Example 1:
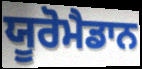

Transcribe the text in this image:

ਯੂਰੋਮੈਡਾਨ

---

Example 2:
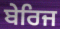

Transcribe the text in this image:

ਬੇਰਿਜ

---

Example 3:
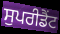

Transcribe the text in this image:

ਸੁਪਰੀਡੈਂਟ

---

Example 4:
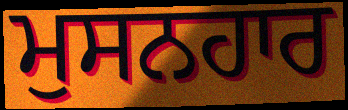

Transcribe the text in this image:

ਮੁਸਨਹਾਰ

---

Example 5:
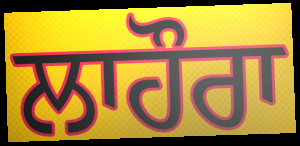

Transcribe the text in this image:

ਲਾਹੌਰਾ